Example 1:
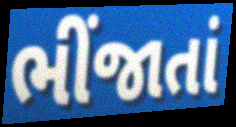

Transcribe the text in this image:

ભીંજાતાં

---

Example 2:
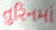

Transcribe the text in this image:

તુરિનમાં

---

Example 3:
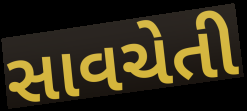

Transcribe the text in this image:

સાવચેતી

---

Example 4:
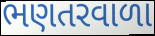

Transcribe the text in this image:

ભણતરવાળા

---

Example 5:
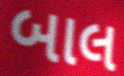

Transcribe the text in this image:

બાલ